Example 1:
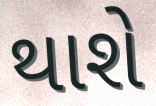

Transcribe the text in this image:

થાશે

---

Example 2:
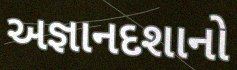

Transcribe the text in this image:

અજ્ઞાનદશાનો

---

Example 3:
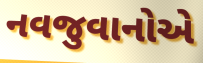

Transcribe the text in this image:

નવજુવાનોએ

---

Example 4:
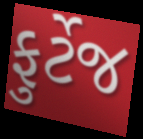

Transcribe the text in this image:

ફુર્ટેજ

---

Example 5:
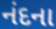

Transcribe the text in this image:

નંદના